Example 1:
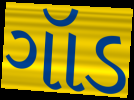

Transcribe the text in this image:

ગૉડ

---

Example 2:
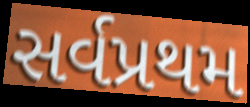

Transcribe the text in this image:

સર્વપ્રથમ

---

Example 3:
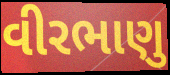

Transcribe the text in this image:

વીરભાણુ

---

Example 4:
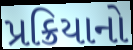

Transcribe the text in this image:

પ્રક્રિયાનો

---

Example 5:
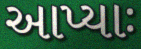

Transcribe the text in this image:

આપ્યાઃ